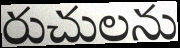
రుచులను